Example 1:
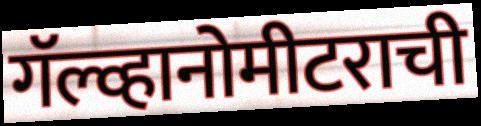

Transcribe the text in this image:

गॅल्व्हानोमीटराची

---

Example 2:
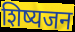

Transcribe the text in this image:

शिष्यजन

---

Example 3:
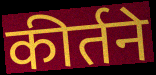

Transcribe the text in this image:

कीर्तने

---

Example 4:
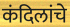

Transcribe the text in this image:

कंदिलांचे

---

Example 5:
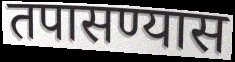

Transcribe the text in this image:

तपासण्यास